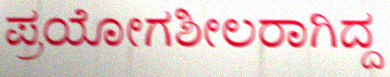
ಪ್ರಯೋಗಶೀಲರಾಗಿದ್ದ